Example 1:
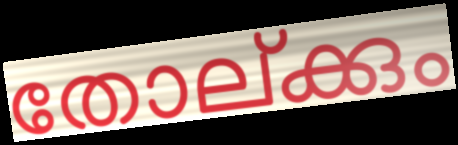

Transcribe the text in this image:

തോല്ക്കും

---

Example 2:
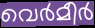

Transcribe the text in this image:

വെർമീർ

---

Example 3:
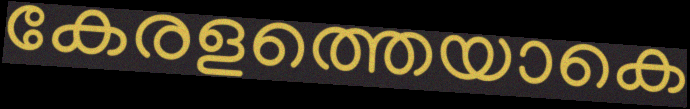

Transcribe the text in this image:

കേരളത്തെയാകെ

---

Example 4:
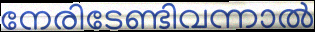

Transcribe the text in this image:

നേരിടേണ്ടിവന്നാൽ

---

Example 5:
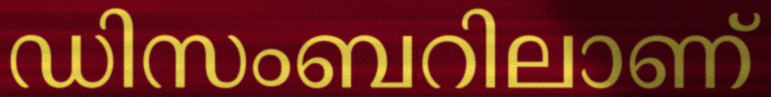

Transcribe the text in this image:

ഡിസംബറിലാണ്